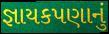
જ્ઞાયકપણાનું